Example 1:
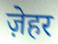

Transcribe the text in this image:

ज़ेहर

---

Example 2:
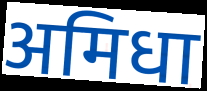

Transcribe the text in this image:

अमिधा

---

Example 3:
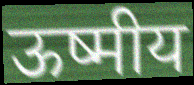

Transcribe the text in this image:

ऊष्मीय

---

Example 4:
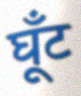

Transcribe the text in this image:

घूँट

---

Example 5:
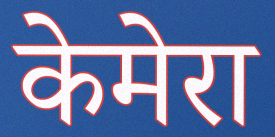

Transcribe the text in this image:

केमेरा